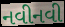
નવીનવી